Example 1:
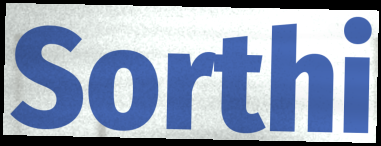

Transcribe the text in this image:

Sorthi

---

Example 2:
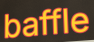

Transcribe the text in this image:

baffle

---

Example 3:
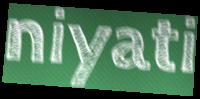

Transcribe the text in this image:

niyati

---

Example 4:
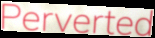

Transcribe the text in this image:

Perverted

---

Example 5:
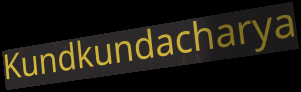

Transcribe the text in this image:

Kundkundacharya